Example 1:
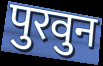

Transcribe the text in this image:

पुरवुन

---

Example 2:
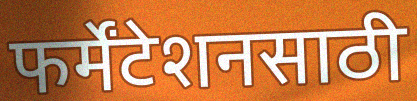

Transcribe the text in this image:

फर्मेंटेशनसाठी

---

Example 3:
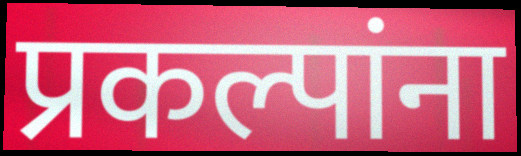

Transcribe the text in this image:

प्रकल्पांना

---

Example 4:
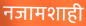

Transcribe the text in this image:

नजामशाही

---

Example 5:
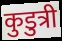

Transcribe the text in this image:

कुडुत्री